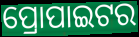
ପ୍ରୋପାଇଟର